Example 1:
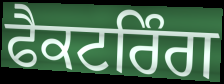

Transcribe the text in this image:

ਫੈਕਟਰਿੰਗ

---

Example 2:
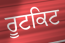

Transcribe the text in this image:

ਰੂਟਕਿਟ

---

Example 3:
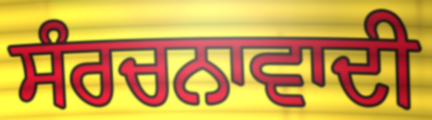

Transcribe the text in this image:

ਸੰਰਚਨਾਵਾਦੀ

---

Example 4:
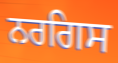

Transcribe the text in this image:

ਨਰਗਿਸ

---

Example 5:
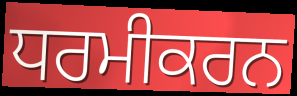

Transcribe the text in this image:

ਧਰਮੀਕਰਨ